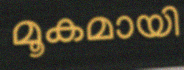
മൂകമായി